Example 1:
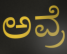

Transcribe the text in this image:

ಅವ್ರೆ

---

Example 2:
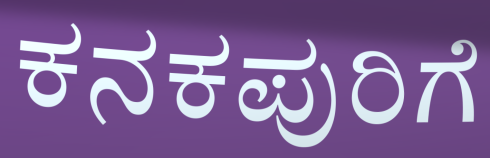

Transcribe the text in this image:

ಕನಕಪುರಿಗೆ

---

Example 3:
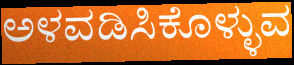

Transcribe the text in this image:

ಅಳವಡಿಸಿಕೊಳ್ಳುವ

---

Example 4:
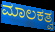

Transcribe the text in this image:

ಮಾಲಕತ್ವ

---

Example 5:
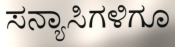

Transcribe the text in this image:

ಸನ್ಯಾಸಿಗಳಿಗೂ